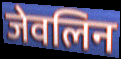
जेवलिन